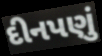
દીનપણું